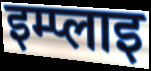
इम्प्लाइ